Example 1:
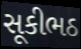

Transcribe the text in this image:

સૂકીભઠ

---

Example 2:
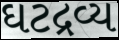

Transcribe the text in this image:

ઘટદ્રવ્ય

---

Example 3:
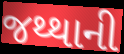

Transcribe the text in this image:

જથ્થાની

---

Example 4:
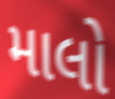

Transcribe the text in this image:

માલો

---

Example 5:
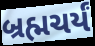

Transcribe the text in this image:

બ્રહ્મચર્યં